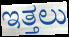
ಇತ್ತಲು